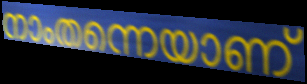
നാംതന്നെയാണ്